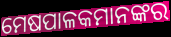
ମେଷପାଳକମାନଙ୍କର